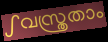
ഽവസ്ത്രതാം